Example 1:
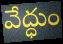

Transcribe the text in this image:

వేద్ధుం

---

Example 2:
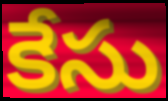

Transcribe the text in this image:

కేసు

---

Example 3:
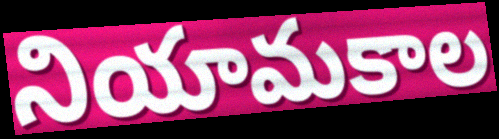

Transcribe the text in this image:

నియామకాల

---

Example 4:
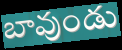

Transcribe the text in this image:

బావుండు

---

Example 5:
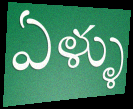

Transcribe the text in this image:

ఏళ్ళు